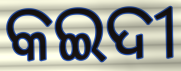
କଇଦୀ